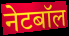
नेटबॉल